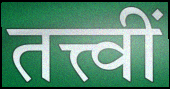
तत्त्वीं